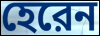
হেরেন